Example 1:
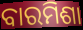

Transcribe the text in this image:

ବାରମିଶା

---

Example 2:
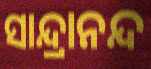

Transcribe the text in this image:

ସାନ୍ଦ୍ରାନନ୍ଦ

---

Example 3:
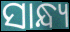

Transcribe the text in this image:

ସାନ୍ଧ୍ୟ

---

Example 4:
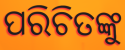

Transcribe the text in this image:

ପରିଚିତଙ୍କୁ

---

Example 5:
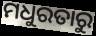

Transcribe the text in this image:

ମଧୁରତାରୁ